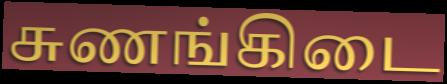
சுணங்கிடை